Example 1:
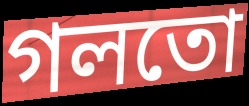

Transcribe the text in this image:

গলতো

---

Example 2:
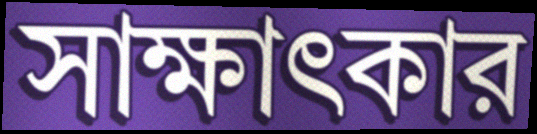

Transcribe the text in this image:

সাক্ষাৎকার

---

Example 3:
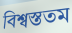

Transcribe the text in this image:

বিশ্বস্ততম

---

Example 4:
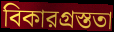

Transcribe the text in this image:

বিকারগ্রস্ততা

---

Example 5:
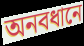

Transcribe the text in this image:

অনবধানে